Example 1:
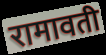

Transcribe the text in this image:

रामावती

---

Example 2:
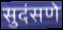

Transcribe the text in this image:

सुदंसणे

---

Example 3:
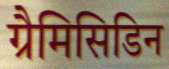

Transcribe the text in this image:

ग्रैमिसिडिन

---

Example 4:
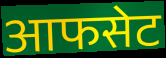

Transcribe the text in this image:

आफसेट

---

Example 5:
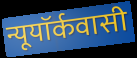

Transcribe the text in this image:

न्यूयॉर्कवासी